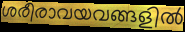
ശരീരാവയവങ്ങളിൽ